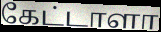
கேட்டாளா